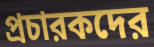
প্রচারকদের